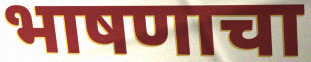
भाषणाचा